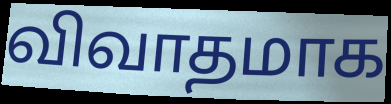
விவாதமாக